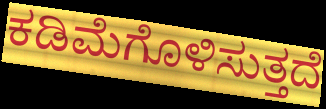
ಕಡಿಮೆಗೊಳಿಸುತ್ತದೆ